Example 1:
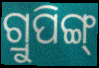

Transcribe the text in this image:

ଗ୍ରୁପିଙ୍ଗ୍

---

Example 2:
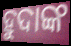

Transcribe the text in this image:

ହୁଦାଙ୍କ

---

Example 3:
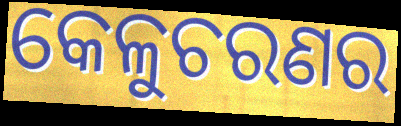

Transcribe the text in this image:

କେଳୁଚରଣର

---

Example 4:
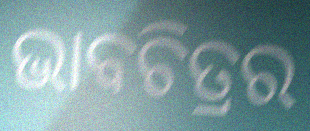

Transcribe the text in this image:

ଭାବଚିତ୍ରର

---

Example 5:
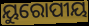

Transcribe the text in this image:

ୟୁରୋପୀୟ